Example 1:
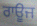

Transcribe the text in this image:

ਰਾਊਜ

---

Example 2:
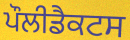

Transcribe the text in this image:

ਪੌਲੀਡੈਕਟਸ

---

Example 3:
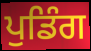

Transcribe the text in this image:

ਪੁਡਿੰਗ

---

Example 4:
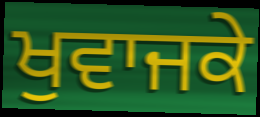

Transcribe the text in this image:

ਖੁਵਾਜਕੇ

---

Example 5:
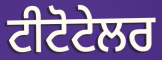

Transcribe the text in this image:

ਟੀਟੋਟੇਲਰ